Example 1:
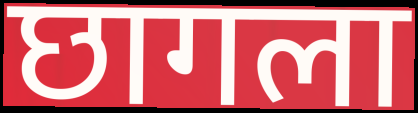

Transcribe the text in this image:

छागला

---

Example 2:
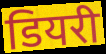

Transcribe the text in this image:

डियरी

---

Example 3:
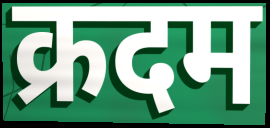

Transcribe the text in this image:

क्रदम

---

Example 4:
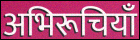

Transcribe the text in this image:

अभिरूचियाँ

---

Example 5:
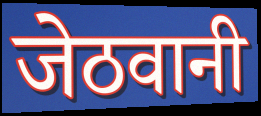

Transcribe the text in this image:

जेठवानी